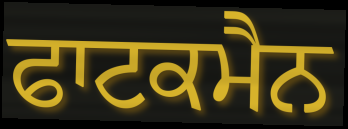
ਫਾਟਕਮੈਨ